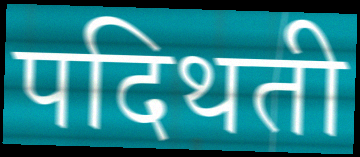
पदिथती